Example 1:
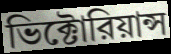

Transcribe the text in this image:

ভিক্টোরিয়ান্স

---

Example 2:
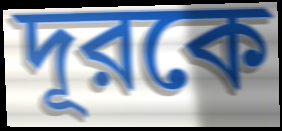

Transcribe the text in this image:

দূরকে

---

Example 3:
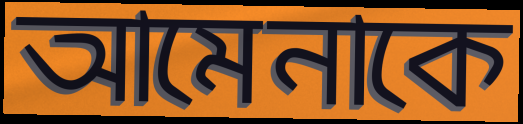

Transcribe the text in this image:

আমেনাকে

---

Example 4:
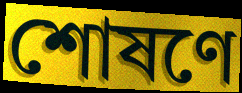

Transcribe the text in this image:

শোষণে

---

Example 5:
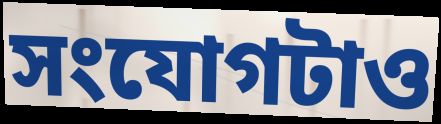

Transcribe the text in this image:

সংযোগটাও